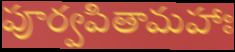
పూర్వపితామహాః